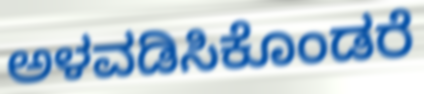
ಅಳವಡಿಸಿಕೊಂಡರೆ